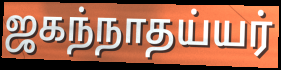
ஜகந்நாதய்யர்